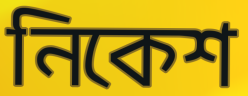
নিকেশ